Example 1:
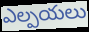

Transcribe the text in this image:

ఎల్పయలు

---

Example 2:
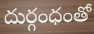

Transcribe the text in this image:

దుర్గంధంతో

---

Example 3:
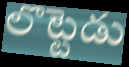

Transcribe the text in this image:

లొట్టెడు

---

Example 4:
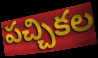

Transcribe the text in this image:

పచ్చికల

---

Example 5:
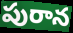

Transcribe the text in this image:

పురాన